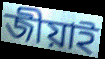
জীয়াই